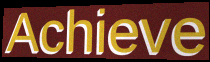
Achieve